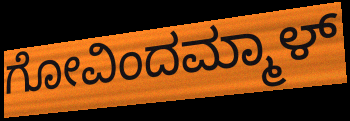
ಗೋವಿಂದಮ್ಮಾಳ್